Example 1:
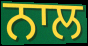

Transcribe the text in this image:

ਨਾਲ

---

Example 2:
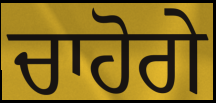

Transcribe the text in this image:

ਚਾਹੋਗੇ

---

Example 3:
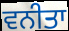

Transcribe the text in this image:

ਵਨੀਤਾ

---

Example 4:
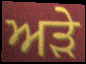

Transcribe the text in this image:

ਅੜੇ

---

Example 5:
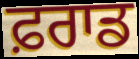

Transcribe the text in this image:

ਫ਼ਰਾਡ